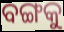
ବଙ୍ଗକୁ